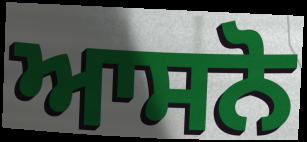
ਆਸਨੋ